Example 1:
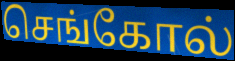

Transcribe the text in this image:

செங்கோல்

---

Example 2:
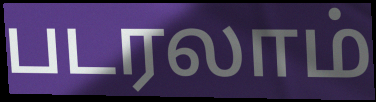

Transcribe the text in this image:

படரலாம்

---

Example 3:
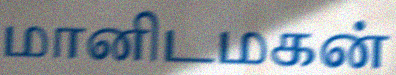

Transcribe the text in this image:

மானிடமகன்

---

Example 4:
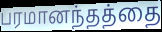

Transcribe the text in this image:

பரமானந்தத்தை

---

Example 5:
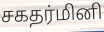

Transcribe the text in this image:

சகதர்மினி